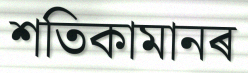
শতিকামানৰ